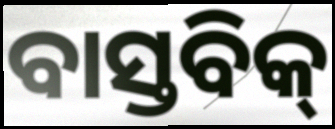
ବାସ୍ତବିକ୍